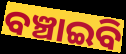
ବଞ୍ଚାଇବି